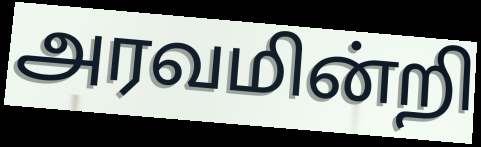
அரவமின்றி